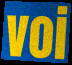
voi